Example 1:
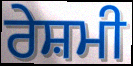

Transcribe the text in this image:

ਰੇਸ਼ਮੀ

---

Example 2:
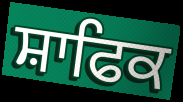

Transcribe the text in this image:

ਸ਼ਾਫਿਕ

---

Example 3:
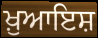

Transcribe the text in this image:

ਖ਼ੁਆਇਸ਼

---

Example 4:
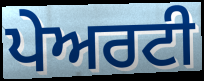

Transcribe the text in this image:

ਪੇਅਰਟੀ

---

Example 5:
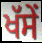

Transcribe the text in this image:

ਖੱਸੇਂ